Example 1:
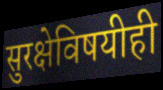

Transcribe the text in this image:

सुरक्षेविषयीही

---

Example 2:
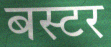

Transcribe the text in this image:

बस्टर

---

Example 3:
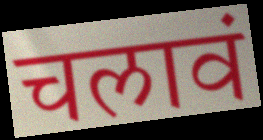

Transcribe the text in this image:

चलावं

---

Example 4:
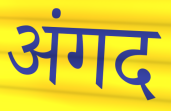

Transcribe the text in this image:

अंगद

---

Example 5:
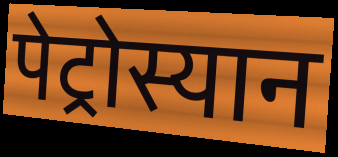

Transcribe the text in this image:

पेट्रोस्यान